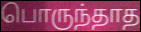
பொருந்தாத